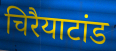
चिरैयाटांड